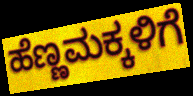
ಹೆಣ್ಣಮಕ್ಕಳಿಗೆ